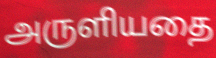
அருளியதை